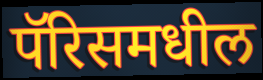
पॅरिसमधील